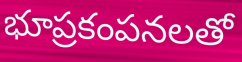
భూప్రకంపనలతో